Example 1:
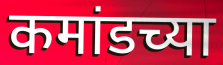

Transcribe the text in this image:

कमांडच्या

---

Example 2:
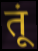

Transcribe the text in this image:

तूं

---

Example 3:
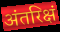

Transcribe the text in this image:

अंतरिक्षं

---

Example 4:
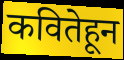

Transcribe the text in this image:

कवितेहून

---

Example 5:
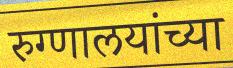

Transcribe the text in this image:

रुग्णालयांच्या